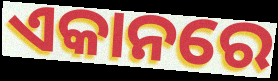
ଏକାନରେ